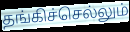
தங்கிச்செல்லும்